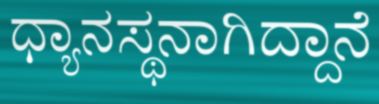
ಧ್ಯಾನಸ್ಥನಾಗಿದ್ದಾನೆ